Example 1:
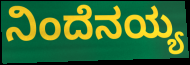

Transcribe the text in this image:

ನಿಂದೆನಯ್ಯ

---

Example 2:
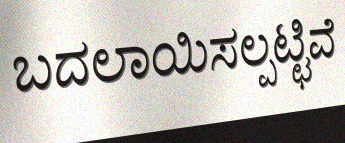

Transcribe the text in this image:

ಬದಲಾಯಿಸಲ್ಪಟ್ಟಿವೆ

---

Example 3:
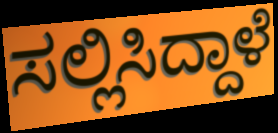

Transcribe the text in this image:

ಸಲ್ಲಿಸಿದ್ದಾಳೆ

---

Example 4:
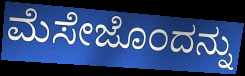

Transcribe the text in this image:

ಮೆಸೇಜೊಂದನ್ನು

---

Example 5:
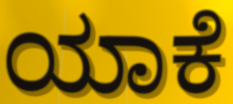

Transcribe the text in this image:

ಯಾಕೆ